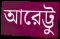
আরেট্টু